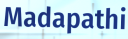
Madapathi